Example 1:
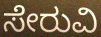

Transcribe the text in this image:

ಸೇರುವಿ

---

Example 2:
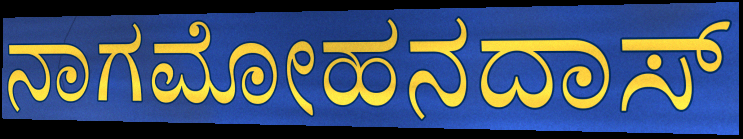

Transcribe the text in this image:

ನಾಗಮೋಹನದಾಸ್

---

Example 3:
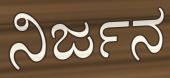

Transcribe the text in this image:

ನಿರ್ಜನ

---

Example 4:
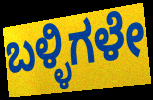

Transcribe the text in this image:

ಬಳ್ಳಿಗಳೇ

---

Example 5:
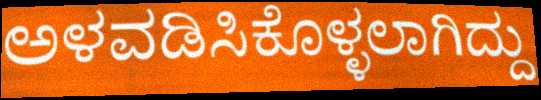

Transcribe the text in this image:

ಅಳವಡಿಸಿಕೊಳ್ಳಲಾಗಿದ್ದು